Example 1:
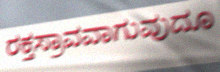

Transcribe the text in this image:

ರಕ್ತಸ್ರಾವವಾಗುವುದೂ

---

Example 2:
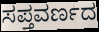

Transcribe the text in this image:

ಸಪ್ತವರ್ಣದ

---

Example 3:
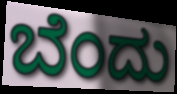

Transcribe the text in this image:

ಬೆಂದು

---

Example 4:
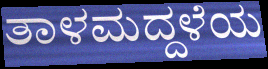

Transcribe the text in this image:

ತಾಳಮದ್ದಳೆಯ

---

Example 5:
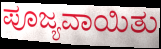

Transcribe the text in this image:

ಪೂಜ್ಯವಾಯಿತು